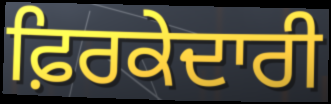
ਫ਼ਿਰਕੇਦਾਰੀ